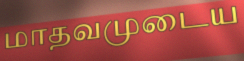
மாதவமுடைய